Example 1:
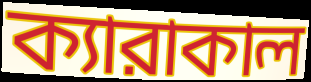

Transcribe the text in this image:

ক্যারাকাল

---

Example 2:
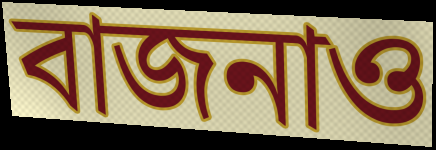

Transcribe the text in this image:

বাজনাও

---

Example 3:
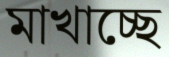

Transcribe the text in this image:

মাখাচ্ছে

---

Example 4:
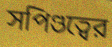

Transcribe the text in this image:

সপিণ্ডত্বের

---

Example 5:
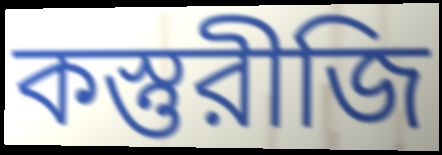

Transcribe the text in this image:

কস্তুরীজি